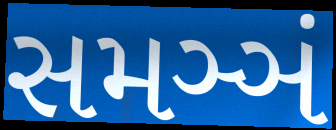
સમઞ્ઞં